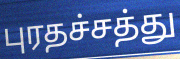
புரதச்சத்து